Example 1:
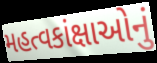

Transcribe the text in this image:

મહત્વકાંક્ષાઓનું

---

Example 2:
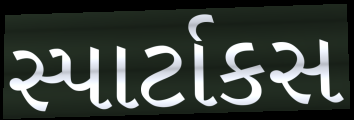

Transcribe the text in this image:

સ્પાર્ટાકસ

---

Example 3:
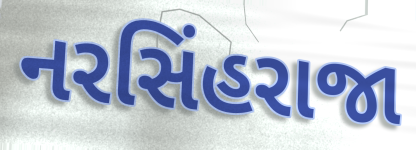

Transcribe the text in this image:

નરસિંહરાજા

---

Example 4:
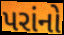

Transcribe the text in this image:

પરાંનો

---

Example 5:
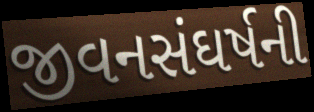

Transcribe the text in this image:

જીવનસંઘર્ષની